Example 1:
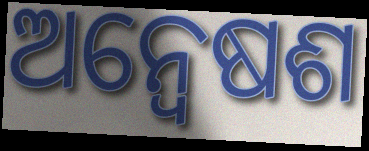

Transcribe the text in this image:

ଅନ୍ୱେଷଶ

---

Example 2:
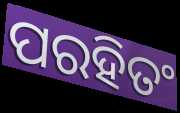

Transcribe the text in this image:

ପରହିତଂ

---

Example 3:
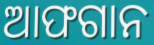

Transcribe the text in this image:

ଆଫଗାନ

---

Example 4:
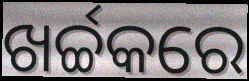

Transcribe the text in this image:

ଖର୍ଚ୍ଚକରେ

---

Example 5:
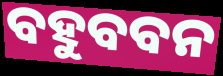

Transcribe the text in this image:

ବହୁବବନ